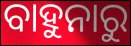
ବାହୁନାରୁ